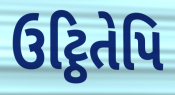
ઉટ્ઠિતેપિ